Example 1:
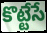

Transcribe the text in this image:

కొట్టేసే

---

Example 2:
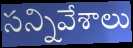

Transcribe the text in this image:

సన్నివేశాలు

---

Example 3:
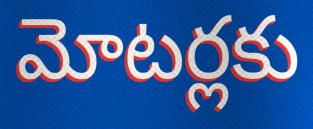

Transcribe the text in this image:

మోటర్లకు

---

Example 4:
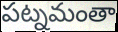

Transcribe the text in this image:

పట్నమంతా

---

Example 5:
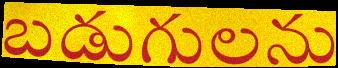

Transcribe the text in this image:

బడుగులను